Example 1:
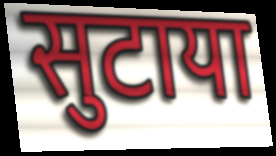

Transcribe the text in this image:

सुटाया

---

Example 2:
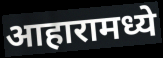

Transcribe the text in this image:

आहारामध्ये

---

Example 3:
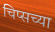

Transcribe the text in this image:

चिप्सच्या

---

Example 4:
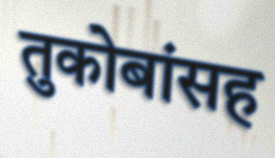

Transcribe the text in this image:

तुकोबांसह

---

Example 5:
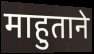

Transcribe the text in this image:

माहुताने